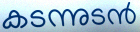
കടന്നുടൻ